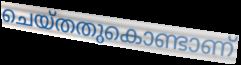
ചെയ്തതുകൊണ്ടാണ്